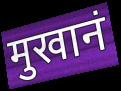
मुखानं